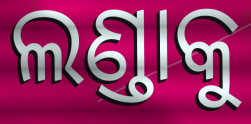
ଲଣ୍ଡାକୁ